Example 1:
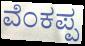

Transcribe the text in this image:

ವೆಂಕಪ್ಪ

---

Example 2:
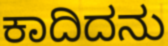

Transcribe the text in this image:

ಕಾದಿದನು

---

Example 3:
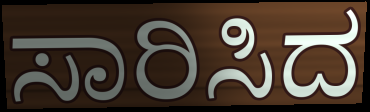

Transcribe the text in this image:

ಸಾರಿಸಿದ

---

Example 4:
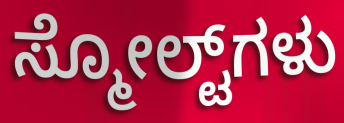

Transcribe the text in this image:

ಸ್ಮೋಲ್ಟ್‌ಗಳು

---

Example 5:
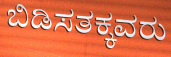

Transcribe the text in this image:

ಬಿಡಿಸತಕ್ಕವರು